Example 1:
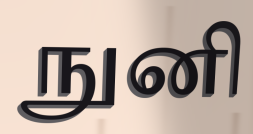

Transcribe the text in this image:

நுனி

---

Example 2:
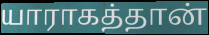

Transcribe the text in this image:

யாராகத்தான்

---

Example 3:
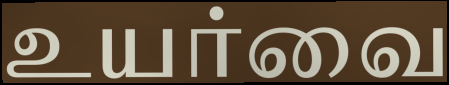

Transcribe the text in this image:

உயர்வை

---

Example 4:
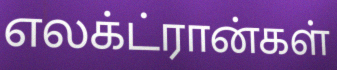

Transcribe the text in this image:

எலக்ட்ரான்கள்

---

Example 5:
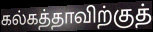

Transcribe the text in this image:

கல்கத்தாவிற்குத்